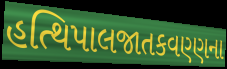
હત્થિપાલજાતકવણ્ણના